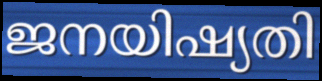
ജനയിഷ്യതി